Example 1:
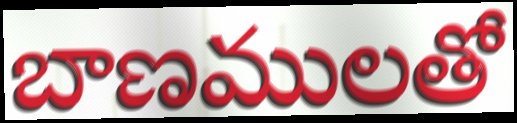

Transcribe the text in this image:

బాణములతో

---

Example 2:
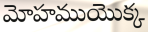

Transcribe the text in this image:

మోహముయొక్క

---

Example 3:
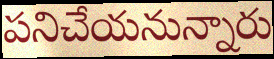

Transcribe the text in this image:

పనిచేయనున్నారు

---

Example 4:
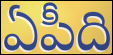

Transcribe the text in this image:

ఏపీది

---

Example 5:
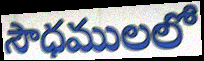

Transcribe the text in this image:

సౌధములలో